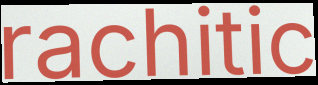
rachitic